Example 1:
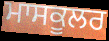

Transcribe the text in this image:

ਮਾਸਕੂਲਰ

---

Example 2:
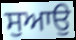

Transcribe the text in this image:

ਸੁਆਉ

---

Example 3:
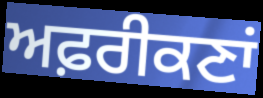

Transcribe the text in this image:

ਅਫ਼ਰੀਕਣਾਂ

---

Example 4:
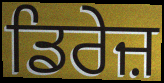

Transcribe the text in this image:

ਡਿਰੇਜ਼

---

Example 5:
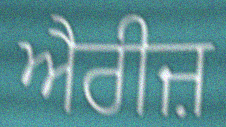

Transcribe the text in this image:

ਐਰੀਜ਼